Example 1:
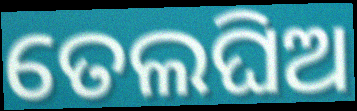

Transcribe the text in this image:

ତେଲଘିଅ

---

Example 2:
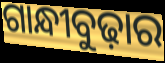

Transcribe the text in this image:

ଗାନ୍ଧୀବୁଢ଼ାର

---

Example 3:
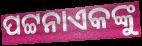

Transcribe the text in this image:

ପଟ୍ଟନାଏକଙ୍କୁ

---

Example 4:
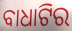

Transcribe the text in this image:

ବାଧାଟିର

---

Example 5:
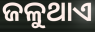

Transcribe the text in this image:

ଜଳୁଥାଏ